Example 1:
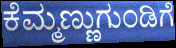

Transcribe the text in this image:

ಕೆಮ್ಮಣ್ಣುಗುಂಡಿಗೆ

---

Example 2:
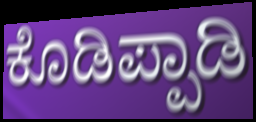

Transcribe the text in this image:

ಕೊಡಿಪ್ಪಾಡಿ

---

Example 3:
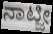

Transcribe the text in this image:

ನಾಟ್ಜೀ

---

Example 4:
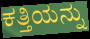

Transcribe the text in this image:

ಕತ್ತಿಯನ್ನು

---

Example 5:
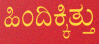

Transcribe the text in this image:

ಹಿಂದಿಕ್ಕಿತ್ತು